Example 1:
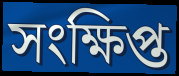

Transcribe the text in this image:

সংক্ষিপ্ত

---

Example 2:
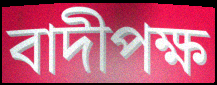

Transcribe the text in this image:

বাদীপক্ষ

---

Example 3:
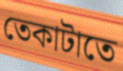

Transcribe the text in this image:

তেকাটাতে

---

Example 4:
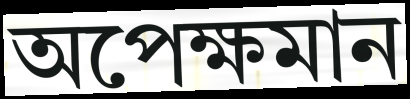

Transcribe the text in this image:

অপেক্ষমান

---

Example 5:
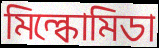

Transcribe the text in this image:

মিল্কোমিডা